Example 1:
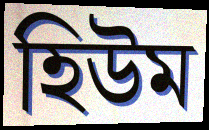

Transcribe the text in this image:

হিউম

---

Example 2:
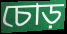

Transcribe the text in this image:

চোড়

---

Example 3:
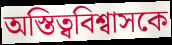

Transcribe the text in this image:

অস্তিত্ববিশ্বাসকে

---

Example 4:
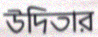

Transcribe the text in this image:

উদিতার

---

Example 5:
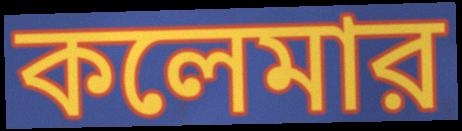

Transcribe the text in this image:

কলেমার